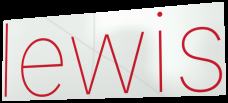
lewis